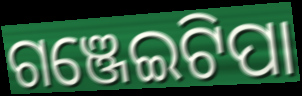
ଗଞ୍ଜେଇଟିପା